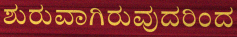
ಶುರುವಾಗಿರುವುದರಿಂದ